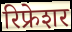
रिफ्रेशर